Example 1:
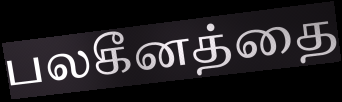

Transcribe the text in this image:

பலகீனத்தை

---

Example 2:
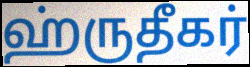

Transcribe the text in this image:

ஹ்ருதீகர்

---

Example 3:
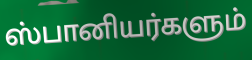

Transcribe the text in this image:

ஸ்பானியர்களும்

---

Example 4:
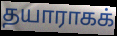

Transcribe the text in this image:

தயாராகக்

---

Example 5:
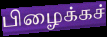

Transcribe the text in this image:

பிழைக்கச்